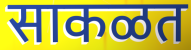
साकळत